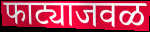
फाट्याजवळ